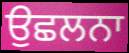
ਉਛਲਨਾ